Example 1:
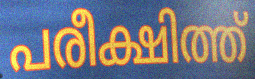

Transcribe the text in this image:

പരീക്ഷിത്ത്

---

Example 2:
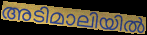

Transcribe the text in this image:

അടിമാലിയിൽ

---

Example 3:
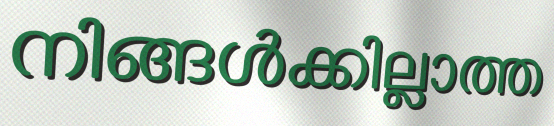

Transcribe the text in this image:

നിങ്ങൾക്കില്ലാത്ത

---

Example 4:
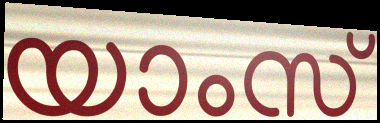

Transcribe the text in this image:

യാംസ്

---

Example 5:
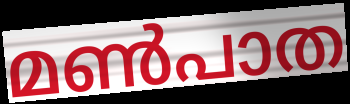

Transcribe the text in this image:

മൺപാത